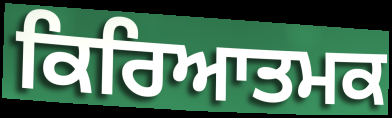
ਕਿਰਿਆਤਮਕ